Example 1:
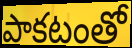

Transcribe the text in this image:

పాకటంతో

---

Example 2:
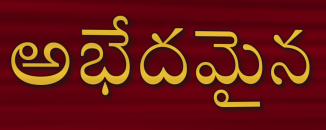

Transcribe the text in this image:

అభేదమైన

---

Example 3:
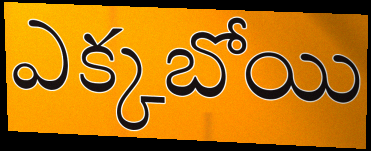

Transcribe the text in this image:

ఎక్కబోయి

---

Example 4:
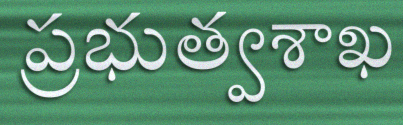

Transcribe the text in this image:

ప్రభుత్వశాఖ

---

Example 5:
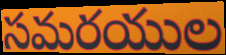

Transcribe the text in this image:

సమరయుల